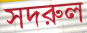
সদরুল